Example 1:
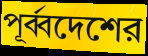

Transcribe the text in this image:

পূর্ব্বদেশের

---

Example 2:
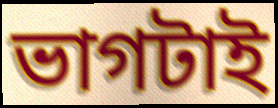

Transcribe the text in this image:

ভাগটাই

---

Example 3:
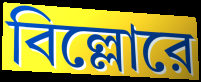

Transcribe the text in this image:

বিল্লোরে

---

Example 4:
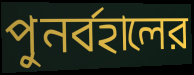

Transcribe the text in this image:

পুনর্বহালের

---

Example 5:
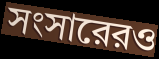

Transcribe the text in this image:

সংসারেরও